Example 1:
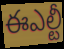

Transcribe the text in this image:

ఈఎల్టీ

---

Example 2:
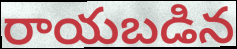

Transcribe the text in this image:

రాయబడిన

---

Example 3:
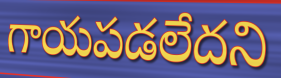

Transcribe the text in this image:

గాయపడలేదని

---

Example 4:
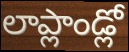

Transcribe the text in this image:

లాప్లాండ్లో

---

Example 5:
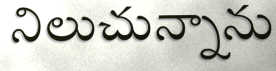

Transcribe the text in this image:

నిలుచున్నాను